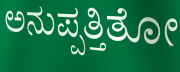
ಅನುಪ್ಪತ್ತಿತೋ